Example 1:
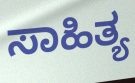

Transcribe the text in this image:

ಸಾಹಿತ್ಯ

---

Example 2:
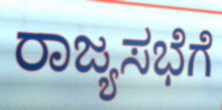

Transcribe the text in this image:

ರಾಜ್ಯಸಭೆಗೆ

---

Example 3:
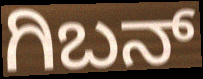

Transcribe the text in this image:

ಗಿಬನ್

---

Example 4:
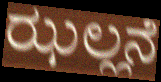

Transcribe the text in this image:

ಝಲ್ಲನೆ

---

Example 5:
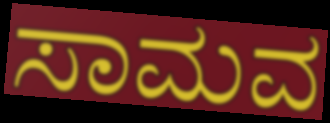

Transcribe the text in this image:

ಸಾಮವ